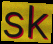
sk